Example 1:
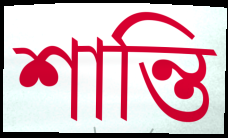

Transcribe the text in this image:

শান্তি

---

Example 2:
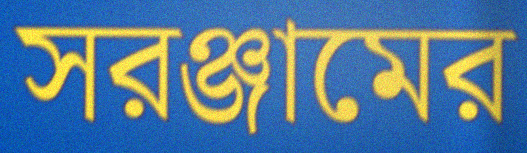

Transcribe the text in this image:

সরঞ্জামের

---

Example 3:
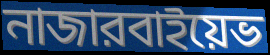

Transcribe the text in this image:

নাজারবাইয়েভ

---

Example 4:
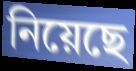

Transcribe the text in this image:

নিয়েছে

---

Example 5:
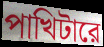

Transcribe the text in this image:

পাখিটারে